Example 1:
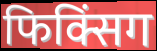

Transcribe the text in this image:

फिक्सिंग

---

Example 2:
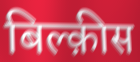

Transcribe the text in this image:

बिल्क़ीस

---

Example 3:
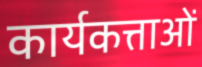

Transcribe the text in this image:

कार्यकत्ताओं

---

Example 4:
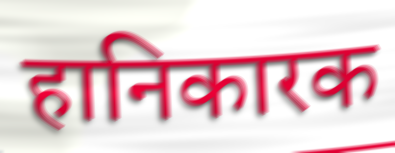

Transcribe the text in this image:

हानिकारक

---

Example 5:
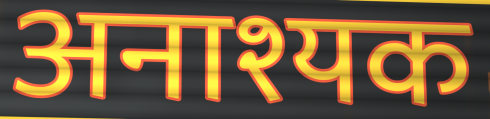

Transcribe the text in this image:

अनाश्यक